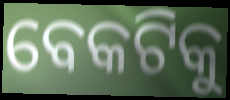
ବେକଟିକୁ